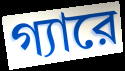
গ্যারে